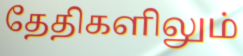
தேதிகளிலும்